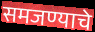
समजण्याचे